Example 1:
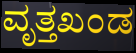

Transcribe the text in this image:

ವೃತ್ತಖಂಡ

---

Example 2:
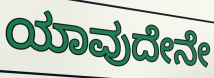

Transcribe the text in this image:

ಯಾವುದೇನೇ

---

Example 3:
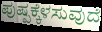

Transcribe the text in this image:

ಪುಷ್ಪಕ್ಕೆಳಸುವುದೆ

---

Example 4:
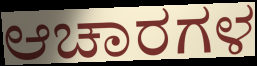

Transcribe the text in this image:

ಆಚಾರಗಳ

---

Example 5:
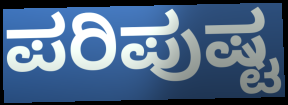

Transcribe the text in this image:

ಪರಿಪುಷ್ಟ